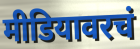
मीडियावरचं